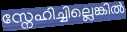
സ്നേഹിച്ചില്ലെങ്കിൽ